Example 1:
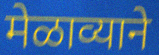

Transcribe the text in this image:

मेळाव्याने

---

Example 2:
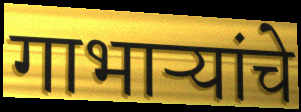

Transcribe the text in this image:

गाभाऱ्यांचे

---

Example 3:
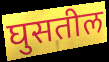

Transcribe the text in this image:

घुसतील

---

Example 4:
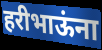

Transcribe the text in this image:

हरीभाऊंना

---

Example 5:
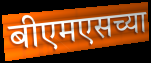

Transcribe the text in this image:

बीएमएसच्या